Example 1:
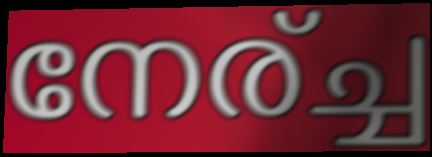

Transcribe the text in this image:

നേര്ച്ച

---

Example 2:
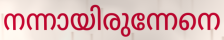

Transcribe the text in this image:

നന്നായിരുന്നേനെ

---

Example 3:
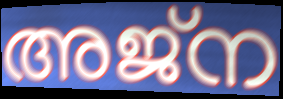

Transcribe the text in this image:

അജ്ന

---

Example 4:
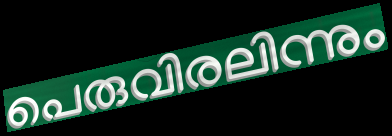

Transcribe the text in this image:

പെരുവിരലിന്നും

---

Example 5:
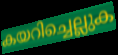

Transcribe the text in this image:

കയറിച്ചെല്ലുക